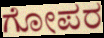
ಗೋಪರ